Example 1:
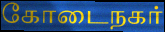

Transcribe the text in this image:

கோடைநகர்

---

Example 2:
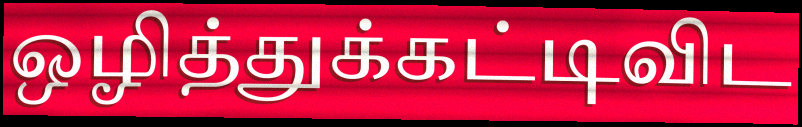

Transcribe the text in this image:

ஒழித்துக்கட்டிவிட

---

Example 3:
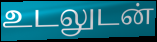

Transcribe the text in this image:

உடலுடன்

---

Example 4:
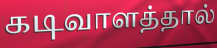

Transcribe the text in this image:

கடிவாளத்தால்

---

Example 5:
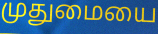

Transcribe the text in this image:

முதுமையை